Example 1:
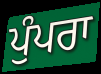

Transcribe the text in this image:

ਪੁੰਪਰਾ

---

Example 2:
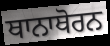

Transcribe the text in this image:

ਥਾਨਾਥੋਰਨ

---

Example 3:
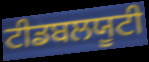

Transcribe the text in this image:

ਟੀਡਬਲਯੂਟੀ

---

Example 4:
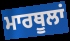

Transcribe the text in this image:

ਮਾਰਥੂਲਾਂ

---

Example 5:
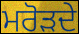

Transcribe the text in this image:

ਮਰੋੜਦੇ